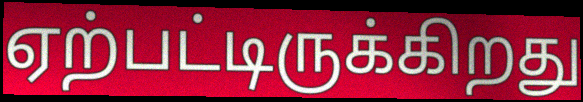
ஏற்பட்டிருக்கிறது